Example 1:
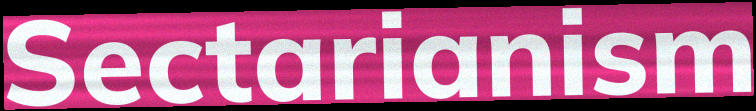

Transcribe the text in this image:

Sectarianism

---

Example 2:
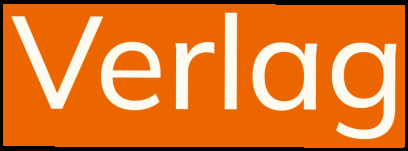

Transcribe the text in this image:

Verlag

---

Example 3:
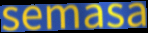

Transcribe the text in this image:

semasa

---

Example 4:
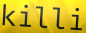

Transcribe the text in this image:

killi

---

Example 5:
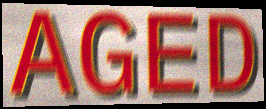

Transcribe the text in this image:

AGED